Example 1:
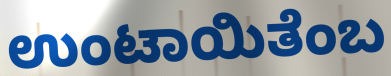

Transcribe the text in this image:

ಉಂಟಾಯಿತೆಂಬ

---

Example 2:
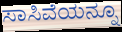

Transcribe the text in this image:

ಸಾಸಿವೆಯನ್ನೂ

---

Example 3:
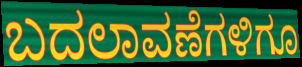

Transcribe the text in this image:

ಬದಲಾವಣೆಗಳಿಗೂ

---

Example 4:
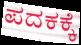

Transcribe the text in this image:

ಪದಕಕ್ಕೆ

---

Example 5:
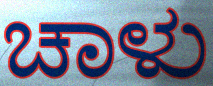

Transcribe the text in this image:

ಚಾಳು